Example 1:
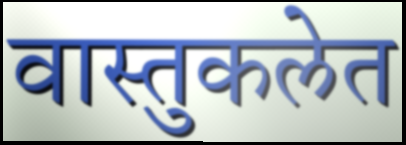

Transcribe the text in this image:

वास्तुकलेत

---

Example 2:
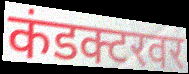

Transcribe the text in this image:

कंडक्टरवर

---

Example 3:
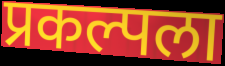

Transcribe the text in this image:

प्रकल्पला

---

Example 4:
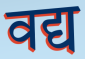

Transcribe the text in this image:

वद्य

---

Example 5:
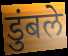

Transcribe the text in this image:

डुंबले